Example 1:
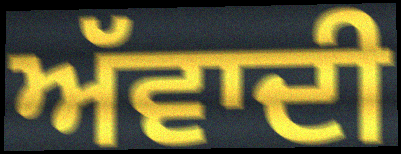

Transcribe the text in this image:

ਅੱਵਾਦੀ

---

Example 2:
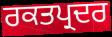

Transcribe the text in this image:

ਰਕਤਪ੍ਰਦਰ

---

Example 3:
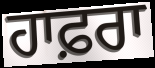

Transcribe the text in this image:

ਹਾਫ਼ਰਾ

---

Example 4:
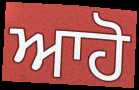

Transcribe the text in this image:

ਆਹੋ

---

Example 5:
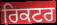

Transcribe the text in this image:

ਰਿਕਟਰ